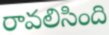
రావలిసింది